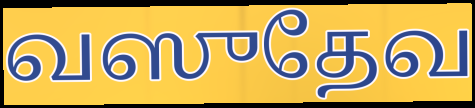
வஸுதேவ